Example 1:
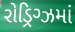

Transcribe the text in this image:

રોડ્રિગ્ઝમાં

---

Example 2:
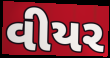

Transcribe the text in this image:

વીયર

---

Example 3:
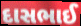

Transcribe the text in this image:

દાસભાઈ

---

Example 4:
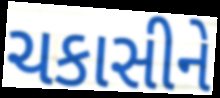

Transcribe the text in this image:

ચકાસીને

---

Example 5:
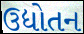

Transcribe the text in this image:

ઉદ્યોતન